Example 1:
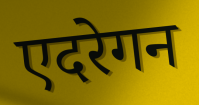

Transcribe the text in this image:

एदरेगन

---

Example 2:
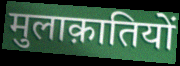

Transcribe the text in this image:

मुलाक़ातियों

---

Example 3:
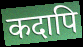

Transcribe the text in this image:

कदापि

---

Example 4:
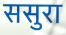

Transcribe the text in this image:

ससुरा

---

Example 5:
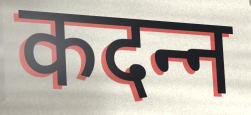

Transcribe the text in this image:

कदन्न